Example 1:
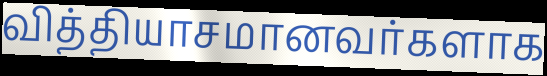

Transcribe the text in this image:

வித்தியாசமானவர்களாக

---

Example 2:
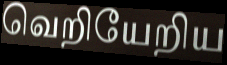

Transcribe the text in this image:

வெறியேறிய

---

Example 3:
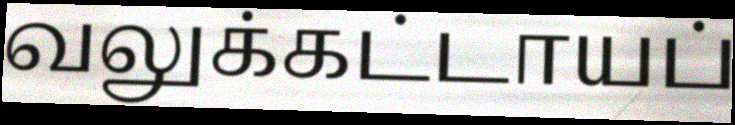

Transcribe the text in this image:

வலுக்கட்டாயப்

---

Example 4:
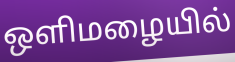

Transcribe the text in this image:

ஒளிமழையில்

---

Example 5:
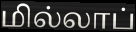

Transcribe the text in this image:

மில்லாப்